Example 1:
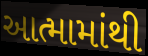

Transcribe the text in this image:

આત્મામાંથી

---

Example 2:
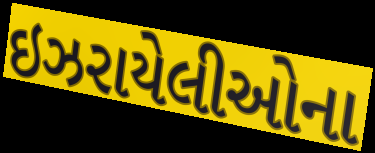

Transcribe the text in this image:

ઇઝરાયેલીઓના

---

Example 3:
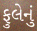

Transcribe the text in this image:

ફુલેનું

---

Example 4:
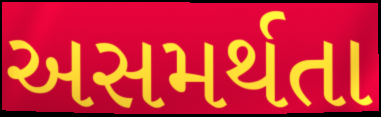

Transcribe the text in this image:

અસમર્થતા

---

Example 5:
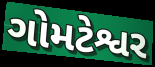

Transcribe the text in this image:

ગોમટેશ્વર